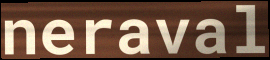
neraval